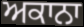
ਅਕਾਨਾ